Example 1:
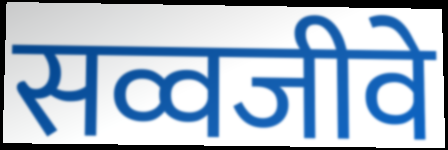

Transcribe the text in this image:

सव्वजीवे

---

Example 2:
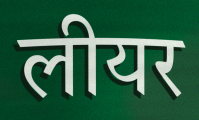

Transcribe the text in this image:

लीयर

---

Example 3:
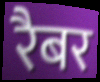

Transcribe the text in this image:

रैबर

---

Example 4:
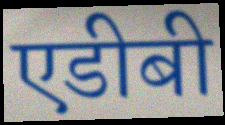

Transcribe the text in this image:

एडीबी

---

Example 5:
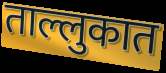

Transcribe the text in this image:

ताल्लुकात